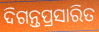
ଦିଗନ୍ତପ୍ରସାରିତ